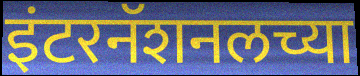
इंटरनॅशनलच्या